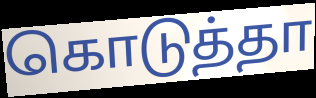
கொடுத்தா